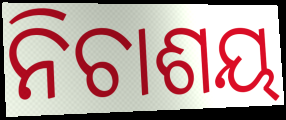
ନିଚାଶୟ